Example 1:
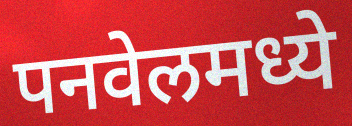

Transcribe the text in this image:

पनवेलमध्ये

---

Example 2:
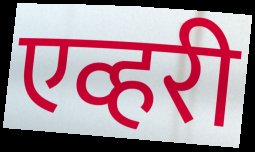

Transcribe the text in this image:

एव्हरी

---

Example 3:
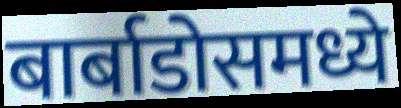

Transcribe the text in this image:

बार्बाडोसमध्ये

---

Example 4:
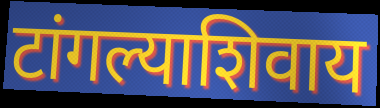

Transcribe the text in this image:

टांगल्याशिवाय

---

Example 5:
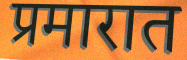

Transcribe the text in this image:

प्रमारात